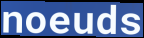
noeuds